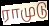
ராமுடு